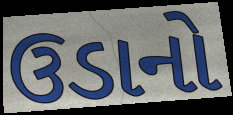
ઉડાનો